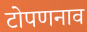
टोपणनाव